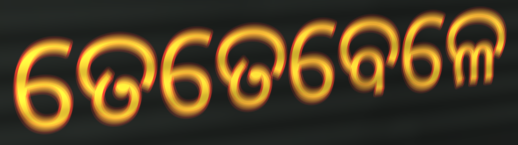
ତେତେବେଳେ